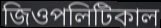
জিওপলিটিকাল